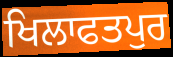
ਖਿਲਾਫਤਪੁਰ